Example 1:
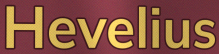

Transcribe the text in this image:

Hevelius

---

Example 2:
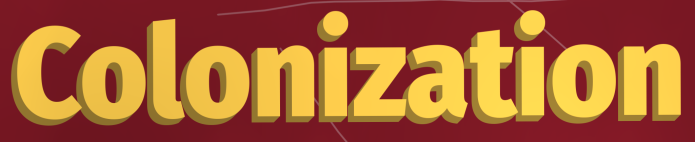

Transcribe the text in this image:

Colonization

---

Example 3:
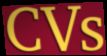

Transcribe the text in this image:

CVs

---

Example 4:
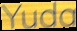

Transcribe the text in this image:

Yuda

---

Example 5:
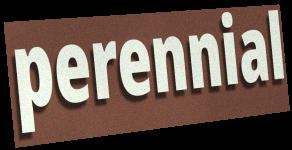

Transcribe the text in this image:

perennial